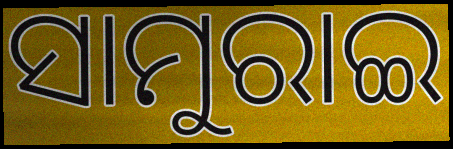
ସାମୁରାଇ